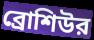
ব্রোশিউর